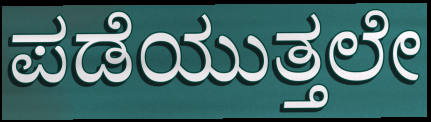
ಪಡೆಯುತ್ತಲೇ